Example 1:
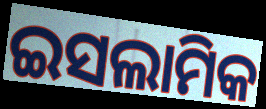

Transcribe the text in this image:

ଇସଲାମିକ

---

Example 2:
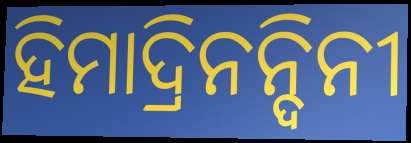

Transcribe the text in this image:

ହିମାଦ୍ରିନନ୍ଦିନୀ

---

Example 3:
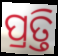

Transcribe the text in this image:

ପ୍ରତ୍ତି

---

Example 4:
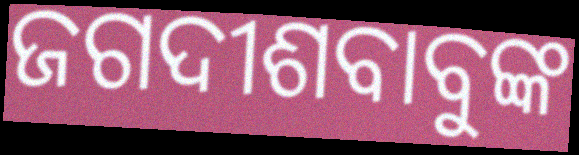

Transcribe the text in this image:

ଜଗଦୀଶବାବୁଙ୍କ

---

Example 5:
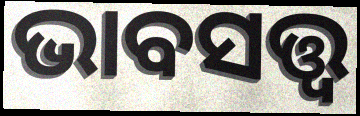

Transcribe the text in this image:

ଭାବସତ୍ତ୍ୱ